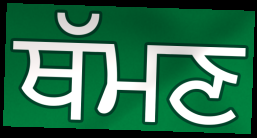
ਥੱਮਣ